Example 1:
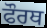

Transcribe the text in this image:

ਫੌਰਥ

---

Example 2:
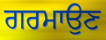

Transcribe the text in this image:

ਗਰਮਾਉਣ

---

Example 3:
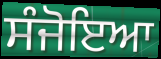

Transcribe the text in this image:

ਸੰਜੋਇਆ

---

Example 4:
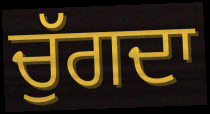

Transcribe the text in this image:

ਚੁੱਗਦਾ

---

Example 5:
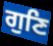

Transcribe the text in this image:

ਗੁਣਿ